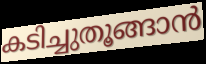
കടിച്ചുതൂങ്ങാൻ